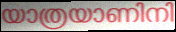
യാത്രയാണിനി